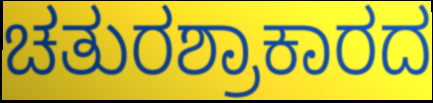
ಚತುರಶ್ರಾಕಾರದ